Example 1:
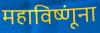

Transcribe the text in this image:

महाविष्णूंना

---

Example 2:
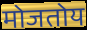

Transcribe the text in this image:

मोजतोय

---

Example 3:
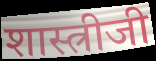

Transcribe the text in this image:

शास्त्रीजी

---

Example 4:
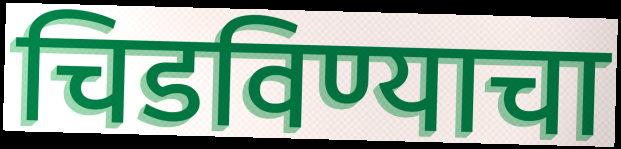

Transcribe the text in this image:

चिडविण्याचा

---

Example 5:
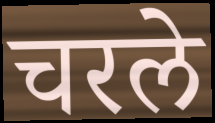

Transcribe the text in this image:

चरले